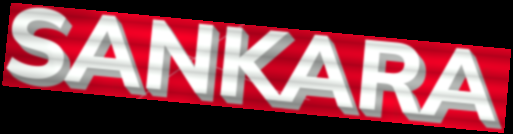
SANKARA